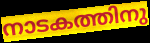
നാടകത്തിനു